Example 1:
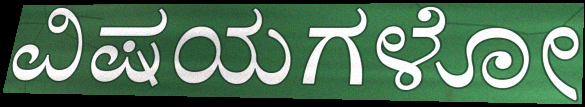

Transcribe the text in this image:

ವಿಷಯಗಳೋ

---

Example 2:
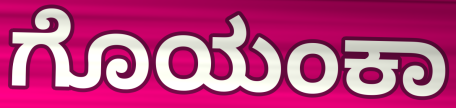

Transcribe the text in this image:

ಗೊಯಂಕಾ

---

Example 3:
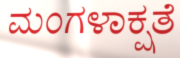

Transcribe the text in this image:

ಮಂಗಳಾಕ್ಷತೆ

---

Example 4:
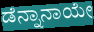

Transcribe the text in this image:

ಡೆನ್ನಾನಾಯೇ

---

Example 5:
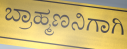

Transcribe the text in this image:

ಬ್ರಾಹ್ಮಣನಿಗಾಗಿ